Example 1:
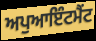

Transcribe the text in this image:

ਅਪੁਆਇੰਟਮੈਂਟ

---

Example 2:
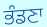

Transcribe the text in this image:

ਭੰਡਣਾ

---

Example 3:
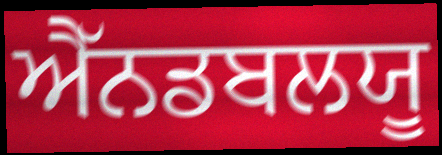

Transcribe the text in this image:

ਐੱਨਡਬਲਯੂ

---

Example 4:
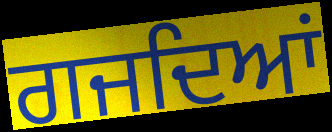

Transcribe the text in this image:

ਗਜਦਿਆਂ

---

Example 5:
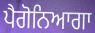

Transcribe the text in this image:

ਪੈਗੋਨਿਆਗਾ